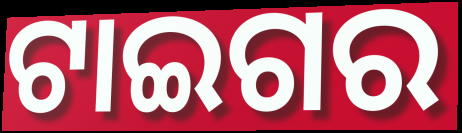
ଟାଇଗର